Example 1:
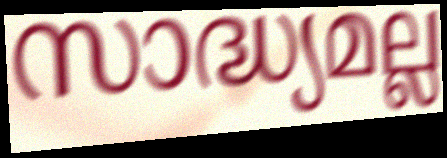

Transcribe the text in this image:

സാദ്ധ്യമല്ല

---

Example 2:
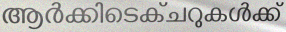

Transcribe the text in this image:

ആർക്കിടെക്ചറുകൾക്ക്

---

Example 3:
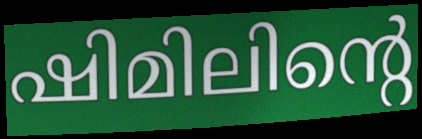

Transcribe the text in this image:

ഷിമിലിന്റെ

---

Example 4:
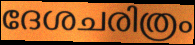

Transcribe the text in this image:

ദേശചരിത്രം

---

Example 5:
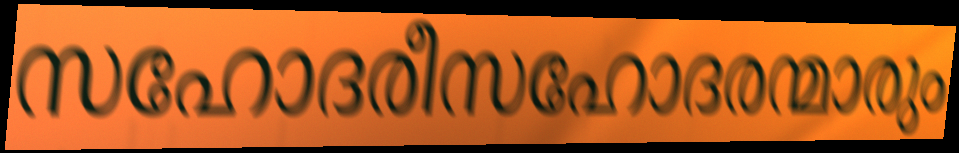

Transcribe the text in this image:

സഹോദരീസഹോദരന്മാരും